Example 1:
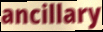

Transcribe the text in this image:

ancillary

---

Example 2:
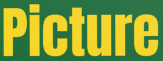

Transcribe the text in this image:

Picture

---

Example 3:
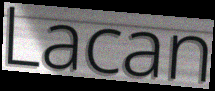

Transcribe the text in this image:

Lacan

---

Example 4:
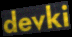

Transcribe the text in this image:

devki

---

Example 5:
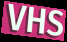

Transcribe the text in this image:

VHS